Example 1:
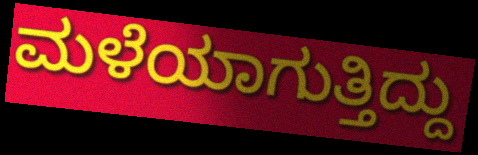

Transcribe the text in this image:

ಮಳೆಯಾಗುತ್ತಿದ್ದು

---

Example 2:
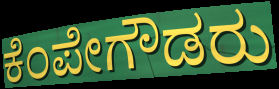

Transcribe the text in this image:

ಕೆಂಪೇಗೌಡರು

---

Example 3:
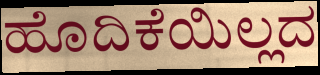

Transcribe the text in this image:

ಹೊದಿಕೆಯಿಲ್ಲದ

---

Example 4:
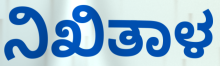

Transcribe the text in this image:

ನಿಖಿತಾಳ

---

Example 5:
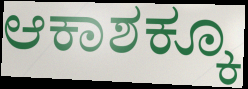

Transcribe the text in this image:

ಆಕಾಶಕ್ಕೂ